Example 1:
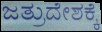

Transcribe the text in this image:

ಜತ್ರುದೇಶಕ್ಕೆ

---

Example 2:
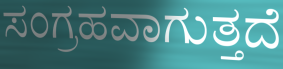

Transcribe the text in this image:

ಸಂಗ್ರಹವಾಗುತ್ತದೆ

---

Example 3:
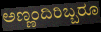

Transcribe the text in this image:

ಅಣ್ಣಂದಿರಿಬ್ಬರೂ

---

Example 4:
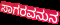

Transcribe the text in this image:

ಸಾಗರವನುನ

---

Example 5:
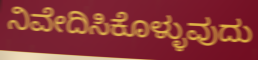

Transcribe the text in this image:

ನಿವೇದಿಸಿಕೊಳ್ಳುವುದು